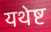
यथेष्ट